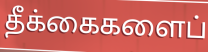
தீக்கைகளைப்